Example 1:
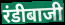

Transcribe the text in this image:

रंडीबाजी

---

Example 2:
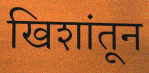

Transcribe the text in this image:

खिशांतून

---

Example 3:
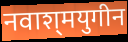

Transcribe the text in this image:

नवाश्मयुगीन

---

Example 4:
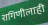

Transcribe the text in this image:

रागिणीलाही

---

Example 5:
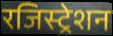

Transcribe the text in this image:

रजिस्ट्रेशन